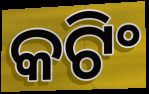
କଟିଂ